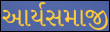
આર્યસમાજી